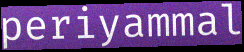
periyammal